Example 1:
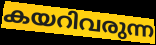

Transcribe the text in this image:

കയറിവരുന്ന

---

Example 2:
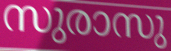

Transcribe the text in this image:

സുരാസു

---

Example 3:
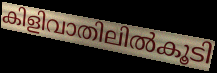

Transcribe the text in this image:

കിളിവാതിലിൽകൂടി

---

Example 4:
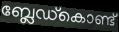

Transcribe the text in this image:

ബ്ലേഡ്കൊണ്ട്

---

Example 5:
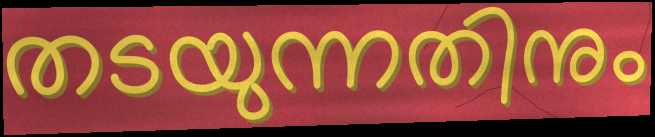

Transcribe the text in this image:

തടയുന്നതിനും